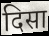
दिसा